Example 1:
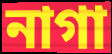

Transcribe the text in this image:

নাগা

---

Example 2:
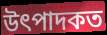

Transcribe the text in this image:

উৎপাদকত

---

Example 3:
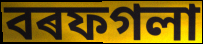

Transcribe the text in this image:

বৰফগলা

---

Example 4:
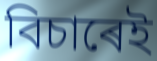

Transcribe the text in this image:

বিচাৰেই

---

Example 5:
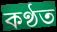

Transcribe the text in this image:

কণ্ঠত